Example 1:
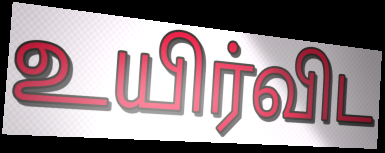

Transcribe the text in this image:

உயிர்விட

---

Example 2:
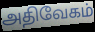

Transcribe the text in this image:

அதிவேகம்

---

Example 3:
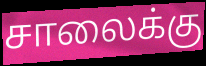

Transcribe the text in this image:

சாலைக்கு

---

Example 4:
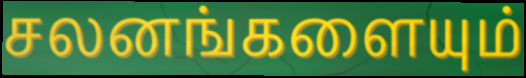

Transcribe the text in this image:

சலனங்களையும்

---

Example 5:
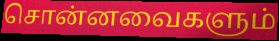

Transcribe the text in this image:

சொன்னவைகளும்